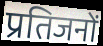
प्रतिजनों